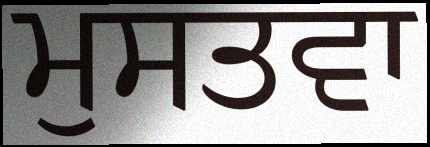
ਮੁਸਤਵਾ